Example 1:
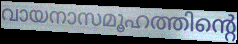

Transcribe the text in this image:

വായനാസമൂഹത്തിന്റെ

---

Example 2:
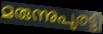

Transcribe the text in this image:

മരുന്നുപുരട്ടി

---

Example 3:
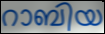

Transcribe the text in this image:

റാബിയ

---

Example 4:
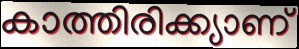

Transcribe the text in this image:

കാത്തിരിക്ക്യാണ്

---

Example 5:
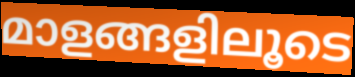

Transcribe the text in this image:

മാളങ്ങളിലൂടെ